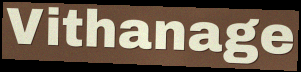
Vithanage